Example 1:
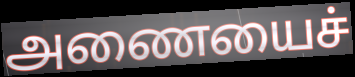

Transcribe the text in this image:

அணையைச்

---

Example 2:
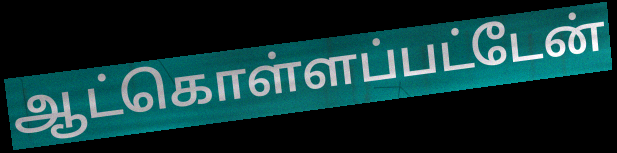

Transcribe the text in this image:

ஆட்கொள்ளப்பட்டேன்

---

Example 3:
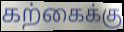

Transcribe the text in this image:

கற்கைக்கு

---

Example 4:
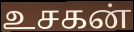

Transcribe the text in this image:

உசகன்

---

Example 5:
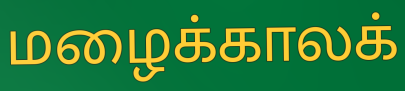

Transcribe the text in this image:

மழைக்காலக்